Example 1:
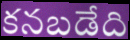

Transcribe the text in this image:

కనబడేది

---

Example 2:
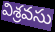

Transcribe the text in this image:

విశ్రవసు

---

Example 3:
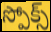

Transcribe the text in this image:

స్పోక్స్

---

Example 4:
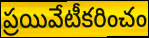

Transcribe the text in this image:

ప్రయివేటీకరించం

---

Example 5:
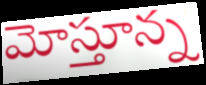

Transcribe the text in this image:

మోస్తూన్న